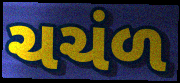
ચચંળ